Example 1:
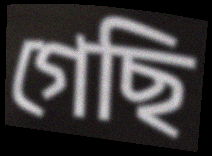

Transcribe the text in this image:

গেছি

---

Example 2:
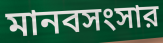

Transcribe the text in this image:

মানবসংসার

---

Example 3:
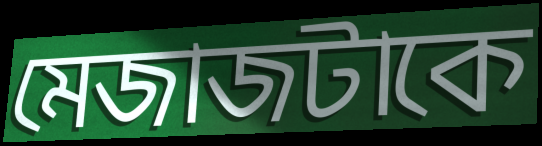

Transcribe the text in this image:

মেজাজটাকে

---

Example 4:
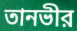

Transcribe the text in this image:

তানভীর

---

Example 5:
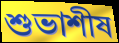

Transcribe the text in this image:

শুভাশীষ